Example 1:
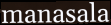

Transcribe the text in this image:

manasala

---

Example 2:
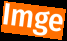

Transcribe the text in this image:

Imge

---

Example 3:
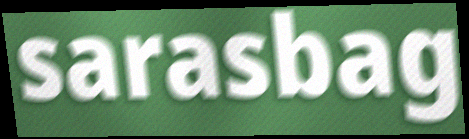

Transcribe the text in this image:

sarasbag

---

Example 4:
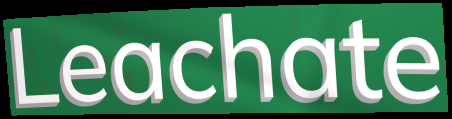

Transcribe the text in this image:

Leachate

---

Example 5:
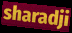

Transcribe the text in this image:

sharadji